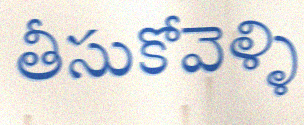
తీసుకోవెళ్ళి